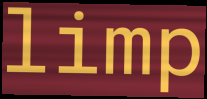
limp